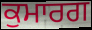
ਕੁਮਾਰਗ